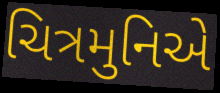
ચિત્રમુનિએ